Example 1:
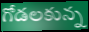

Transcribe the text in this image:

గోడలకున్న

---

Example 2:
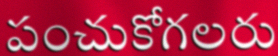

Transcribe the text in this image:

పంచుకోగలరు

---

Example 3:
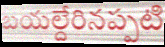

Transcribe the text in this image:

బయల్దేరినప్పటి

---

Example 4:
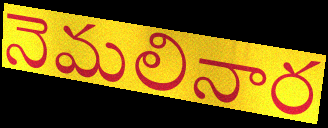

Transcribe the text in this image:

నెమలినార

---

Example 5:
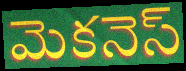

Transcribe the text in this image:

మెకనెస్